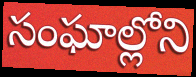
సంఘాల్లోని